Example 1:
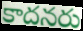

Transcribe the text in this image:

కాదనరు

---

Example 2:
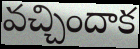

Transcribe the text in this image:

వచ్చిందాక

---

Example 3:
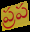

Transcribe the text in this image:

ప్రప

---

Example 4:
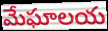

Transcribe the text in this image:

మేఘాలయ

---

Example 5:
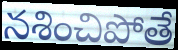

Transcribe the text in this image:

నశించిపోతే